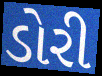
ડોરી